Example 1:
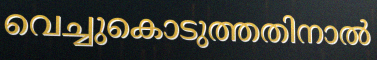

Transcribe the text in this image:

വെച്ചുകൊടുത്തതിനാൽ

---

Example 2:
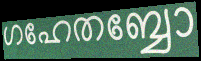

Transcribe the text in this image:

ഗഹേതബ്ബോ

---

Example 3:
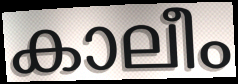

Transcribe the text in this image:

കാലീം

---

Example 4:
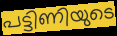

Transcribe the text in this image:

പട്ടിണിയുടെ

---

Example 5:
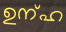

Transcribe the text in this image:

ഉന്ഹ